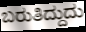
ಬರುತಿದ್ದುದು